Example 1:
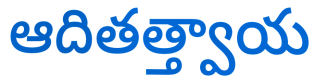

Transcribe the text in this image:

ఆదితత్త్వాయ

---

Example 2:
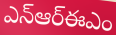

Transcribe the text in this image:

ఎన్ఆర్ఈఎం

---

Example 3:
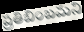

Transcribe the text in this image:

ప్రతిబింబమని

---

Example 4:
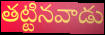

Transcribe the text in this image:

తట్టినవాడు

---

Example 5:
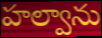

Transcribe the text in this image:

హల్వాను